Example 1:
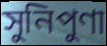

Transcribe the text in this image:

সুনিপুণা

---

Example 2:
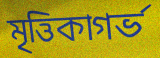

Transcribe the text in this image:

মৃত্তিকাগর্ভ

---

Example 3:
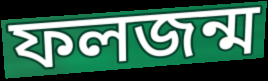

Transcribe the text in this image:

ফলজন্ম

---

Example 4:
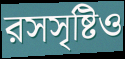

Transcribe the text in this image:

রসসৃষ্টিও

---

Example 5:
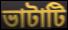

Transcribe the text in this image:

ভাটাটি